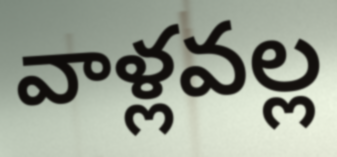
వాళ్లవల్ల